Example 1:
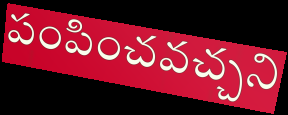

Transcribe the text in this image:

పంపించవచ్చని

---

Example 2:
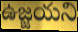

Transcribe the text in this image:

ఉజ్జయని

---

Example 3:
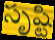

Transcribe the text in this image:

సృష్టి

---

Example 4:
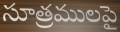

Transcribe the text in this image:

సూత్రములపై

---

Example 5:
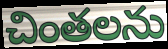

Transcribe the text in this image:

చింతలను